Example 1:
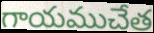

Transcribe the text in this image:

గాయముచేత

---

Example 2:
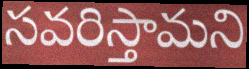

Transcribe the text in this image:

సవరిస్తామని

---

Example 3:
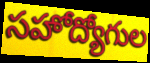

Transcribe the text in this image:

సహోద్యోగుల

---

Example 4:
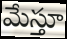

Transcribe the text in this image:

మేస్తూ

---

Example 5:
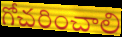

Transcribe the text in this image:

గోచరించాలి